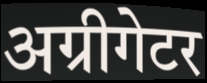
अग्रीगेटर